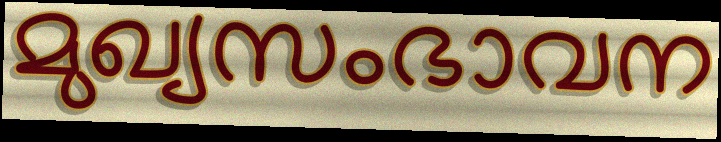
മുഖ്യസംഭാവന